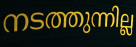
നടത്തുന്നില്ല